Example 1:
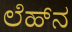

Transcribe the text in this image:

ಲೆಹ್‌ನ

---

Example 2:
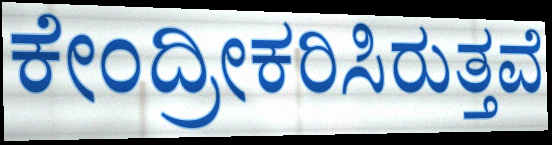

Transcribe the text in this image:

ಕೇಂದ್ರೀಕರಿಸಿರುತ್ತವೆ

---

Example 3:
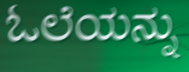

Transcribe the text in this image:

ಓಲೆಯನ್ನು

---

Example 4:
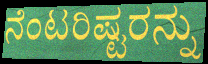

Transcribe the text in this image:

ನೆಂಟರಿಷ್ಟರನ್ನು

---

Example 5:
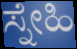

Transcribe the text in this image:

ಸ್ನೇಹಿ